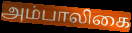
அம்பாலிகை